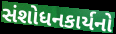
સંશોધનકાર્યનો